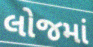
લોજમાં